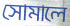
সোমালে